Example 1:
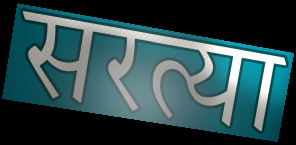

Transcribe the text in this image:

सरत्या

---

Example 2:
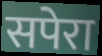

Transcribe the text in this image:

सपेरा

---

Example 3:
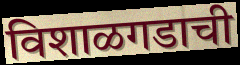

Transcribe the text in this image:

विशाळगडाची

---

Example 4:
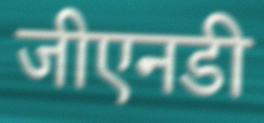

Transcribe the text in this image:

जीएनडी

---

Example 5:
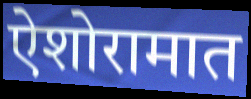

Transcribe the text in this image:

ऐशोरामात